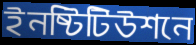
ইনষ্টিটিউশনে